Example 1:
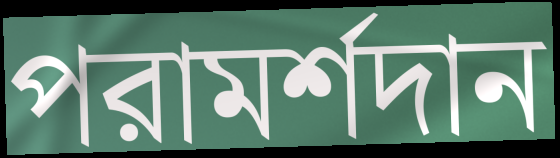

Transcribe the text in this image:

পরামর্শদান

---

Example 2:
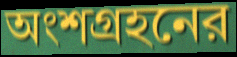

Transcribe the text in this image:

অংশগ্রহনের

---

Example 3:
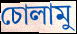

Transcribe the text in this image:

চোলামু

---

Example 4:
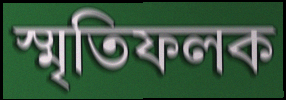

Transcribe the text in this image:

স্মৃতিফলক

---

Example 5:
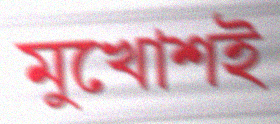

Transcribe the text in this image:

মুখোশই